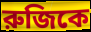
রুজিকে